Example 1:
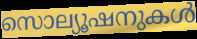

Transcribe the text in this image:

സൊല്യൂഷനുകൾ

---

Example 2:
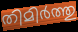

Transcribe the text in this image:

തിമിർത്തു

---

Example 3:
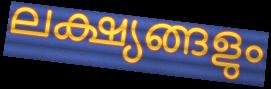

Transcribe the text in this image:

ലക്ഷ്യങ്ങളും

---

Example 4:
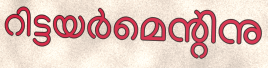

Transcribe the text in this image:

റിട്ടയർമെന്റിനു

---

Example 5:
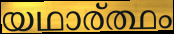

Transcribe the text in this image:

യഥാര്ത്ഥം